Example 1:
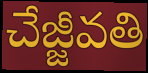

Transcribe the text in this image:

చేజ్జీవతి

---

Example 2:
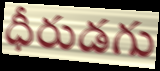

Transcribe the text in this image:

ధీరుడగు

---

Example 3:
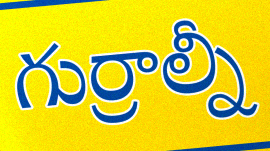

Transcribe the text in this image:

గుర్రాల్నీ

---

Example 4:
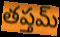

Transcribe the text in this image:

తప్తమ్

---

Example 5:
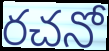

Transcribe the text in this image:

రచనో